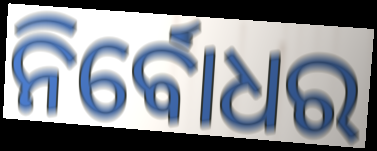
ନିର୍ବୋଧର